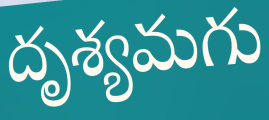
దృశ్యమగు